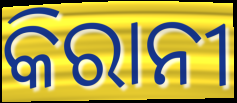
କିରାନୀ